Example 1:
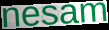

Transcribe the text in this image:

nesam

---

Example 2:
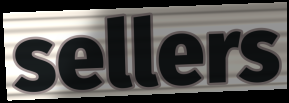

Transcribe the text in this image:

sellers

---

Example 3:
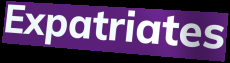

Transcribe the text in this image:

Expatriates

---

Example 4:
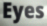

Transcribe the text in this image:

Eyes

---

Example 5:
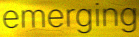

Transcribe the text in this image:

emerging